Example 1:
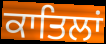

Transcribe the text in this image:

ਕਾਤਿਲਾਂ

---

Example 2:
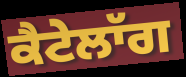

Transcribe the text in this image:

ਕੈਟੇਲਾੱਗ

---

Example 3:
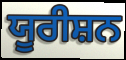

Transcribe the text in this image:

ਯੂਰੀਸ਼ਨ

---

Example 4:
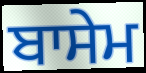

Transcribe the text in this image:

ਬਾਸੇਮ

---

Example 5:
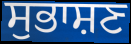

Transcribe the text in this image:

ਸੁਭਾਸ਼ਣ